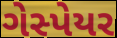
ગેસ્પેયર